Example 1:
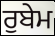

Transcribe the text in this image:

ਰੁਬੇਮ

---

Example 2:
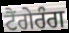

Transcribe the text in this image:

ਟੈਂਗੇਰੰਗ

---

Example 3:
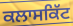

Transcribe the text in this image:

ਕਲਾਸਕਿੱਟ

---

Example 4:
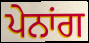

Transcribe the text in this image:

ਪੇਨਾਂਗ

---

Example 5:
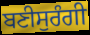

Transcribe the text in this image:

ਬਣੀਸੁਰੰਗੀ